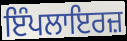
ਇੰਪਲਾਇਰਜ਼